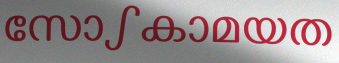
സോഽകാമയത